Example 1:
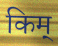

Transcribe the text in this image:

किम्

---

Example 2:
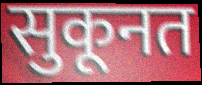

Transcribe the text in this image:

सुकूनत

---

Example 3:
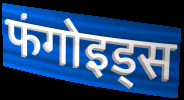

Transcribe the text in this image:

फंगोइड्स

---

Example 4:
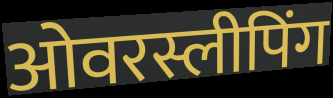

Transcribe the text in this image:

ओवरस्लीपिंग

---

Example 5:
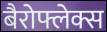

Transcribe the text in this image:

बैरोफ्लेक्स